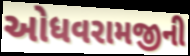
ઓધવરામજીની